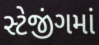
સ્ટેજીંગમાં